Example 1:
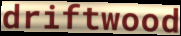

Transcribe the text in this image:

driftwood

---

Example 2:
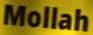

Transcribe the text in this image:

Mollah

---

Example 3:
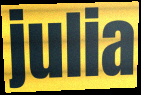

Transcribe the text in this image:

julia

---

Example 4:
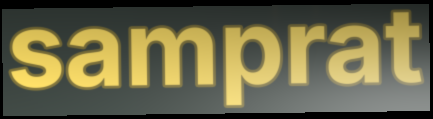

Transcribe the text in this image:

samprat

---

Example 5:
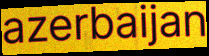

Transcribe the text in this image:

azerbaijan